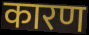
कारण